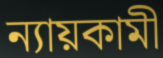
ন্যায়কামী